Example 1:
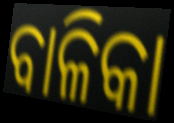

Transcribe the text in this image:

ବାଳିକା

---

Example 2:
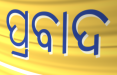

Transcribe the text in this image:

ପ୍ରବାଦ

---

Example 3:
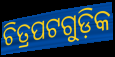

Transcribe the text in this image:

ଚିତ୍ରପଟଗୁଡ଼ିକ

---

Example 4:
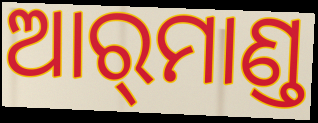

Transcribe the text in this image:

ଆର୍‌ମାଣ୍ଡ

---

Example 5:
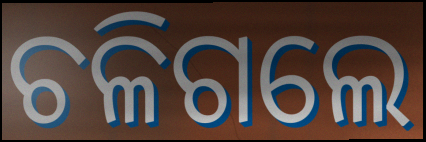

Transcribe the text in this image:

ଚଳିଗଲେ